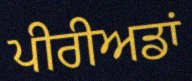
ਪੀਰੀਅਡਾਂ